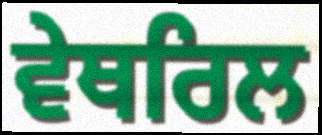
ਵੇਥਰਿਲ